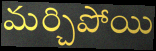
మర్చిపోయి